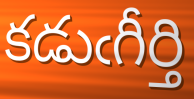
కడుఁగీర్తి